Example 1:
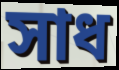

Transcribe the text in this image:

সাধ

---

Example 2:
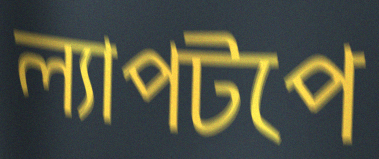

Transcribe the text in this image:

ল্যাপটপে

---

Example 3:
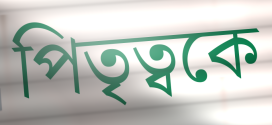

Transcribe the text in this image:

পিতৃত্বকে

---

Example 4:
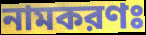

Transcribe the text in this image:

নামকরণঃ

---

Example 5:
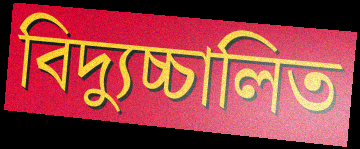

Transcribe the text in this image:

বিদ্যুচ্চালিত